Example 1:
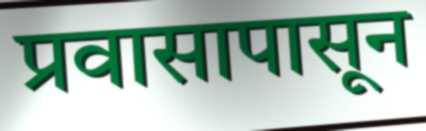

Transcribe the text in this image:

प्रवासापासून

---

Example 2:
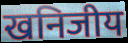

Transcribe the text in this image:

खनिजीय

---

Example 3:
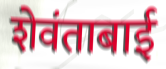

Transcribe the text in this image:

शेवंताबाई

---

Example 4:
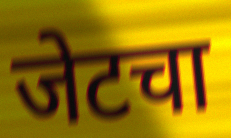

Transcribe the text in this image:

जेटचा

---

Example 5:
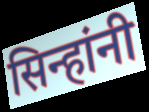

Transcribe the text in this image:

सिन्हांनी